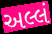
અલ્લં